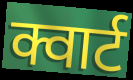
क्वार्ट